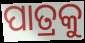
ପାତ୍ରକୁ